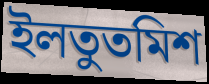
ইলতুতমিশ